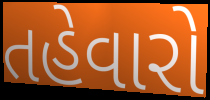
તહેવારો